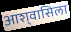
आश्वासिला